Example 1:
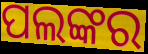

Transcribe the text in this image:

ପଲଙ୍କର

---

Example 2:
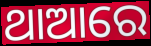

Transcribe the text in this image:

ଥାଆରେ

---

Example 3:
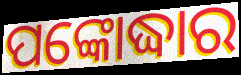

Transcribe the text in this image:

ପଙ୍କୋଦ୍ଧାର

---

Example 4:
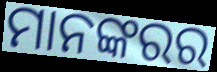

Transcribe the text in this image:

ମାନଙ୍କରର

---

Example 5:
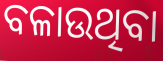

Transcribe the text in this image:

ବଳାଉଥିବା